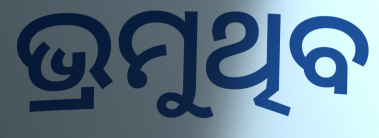
ଭ୍ରମୁଥିବ